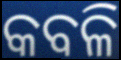
କବଳି